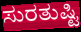
ಸುರತುಷ್ಟಿ